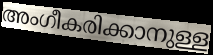
അംഗീകരിക്കാനുള്ള